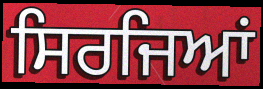
ਸਿਰਜਿਆਂ